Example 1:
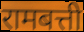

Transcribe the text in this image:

रामबत्ती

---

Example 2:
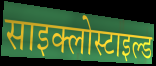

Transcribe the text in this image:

साइक्लोस्टाइल्ड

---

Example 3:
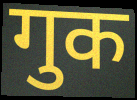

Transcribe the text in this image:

गुक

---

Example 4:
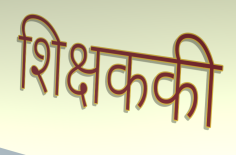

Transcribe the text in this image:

शिक्षककी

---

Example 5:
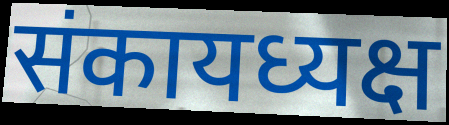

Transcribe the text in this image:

संकायध्यक्ष